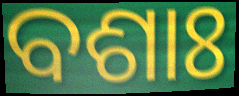
ବଶାଃ